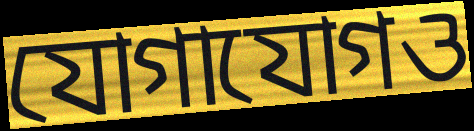
যোগাযোগও